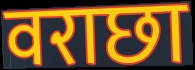
वराछा